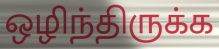
ஒழிந்திருக்க